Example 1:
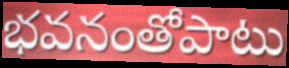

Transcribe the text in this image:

భవనంతోపాటు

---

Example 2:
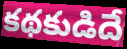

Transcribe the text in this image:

కథకుడిదే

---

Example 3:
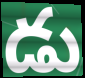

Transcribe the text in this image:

డు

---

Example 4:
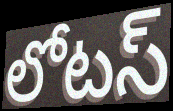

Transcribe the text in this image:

లోటస్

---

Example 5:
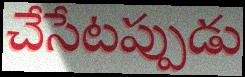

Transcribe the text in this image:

చేసేటప్పుడు